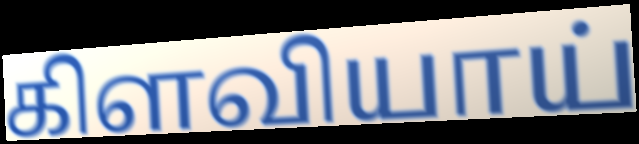
கிளவியாய்